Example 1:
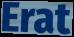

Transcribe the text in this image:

Erat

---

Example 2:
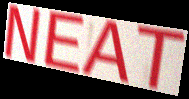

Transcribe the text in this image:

NEAT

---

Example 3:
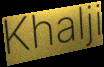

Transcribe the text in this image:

Khalji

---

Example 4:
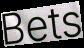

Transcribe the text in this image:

Bets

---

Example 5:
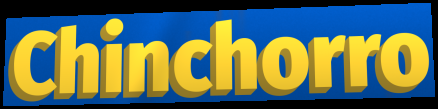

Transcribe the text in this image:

Chinchorro